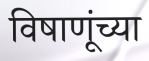
विषाणूंच्या